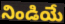
నిండియే